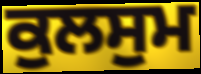
ਕੁਲਸੁਮ